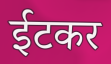
ईटकर